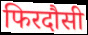
फिरदौसी